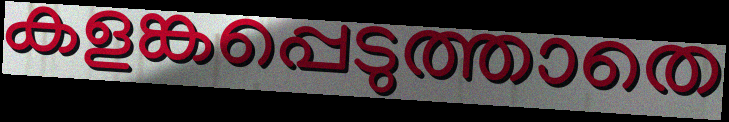
കളങ്കപ്പെടുത്താതെ